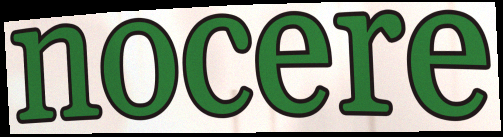
nocere